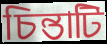
চিন্তাটি